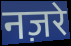
नज़रे